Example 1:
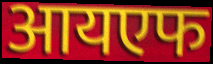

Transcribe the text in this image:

आयएफ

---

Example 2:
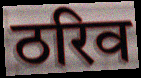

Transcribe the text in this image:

ठरिव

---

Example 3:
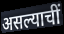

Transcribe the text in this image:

असल्याचीं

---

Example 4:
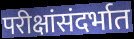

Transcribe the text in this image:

परीक्षांसंदर्भात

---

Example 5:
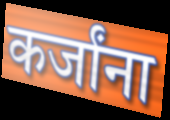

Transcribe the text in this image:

कर्जांना